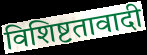
विशिष्टतावादी